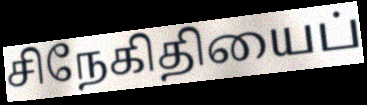
சிநேகிதியைப்